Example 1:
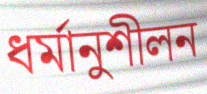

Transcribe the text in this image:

ধৰ্মানুশীলন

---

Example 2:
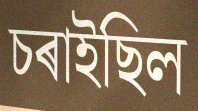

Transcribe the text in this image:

চৰাইছিল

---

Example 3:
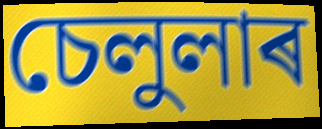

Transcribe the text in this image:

চেলুলাৰ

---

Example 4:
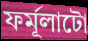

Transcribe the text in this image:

ফৰ্মূলাটো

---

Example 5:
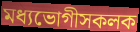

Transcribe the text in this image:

মধ্যভোগীসকলক